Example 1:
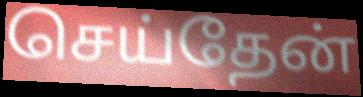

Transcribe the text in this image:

செய்தேன்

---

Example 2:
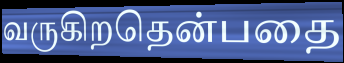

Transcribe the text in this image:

வருகிறதென்பதை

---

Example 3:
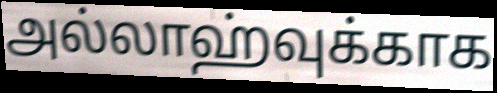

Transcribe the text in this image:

அல்லாஹ்வுக்காக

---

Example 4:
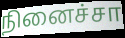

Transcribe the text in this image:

நினைச்சா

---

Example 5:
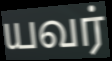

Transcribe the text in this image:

யவர்